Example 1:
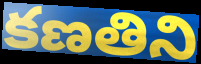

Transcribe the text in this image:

కణతిని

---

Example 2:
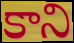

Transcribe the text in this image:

కాని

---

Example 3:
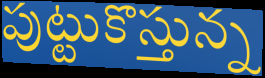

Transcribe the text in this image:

పుట్టుకొస్తున్న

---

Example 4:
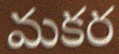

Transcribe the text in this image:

మకర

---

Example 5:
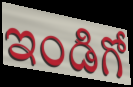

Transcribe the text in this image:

ఇండిగో